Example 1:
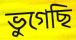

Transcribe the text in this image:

ভুগেছি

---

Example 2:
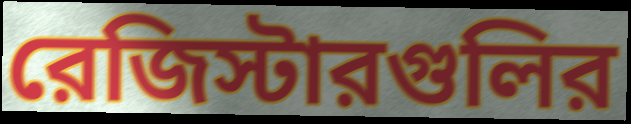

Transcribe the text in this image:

রেজিস্টারগুলির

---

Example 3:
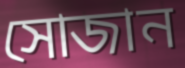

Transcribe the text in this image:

সোজান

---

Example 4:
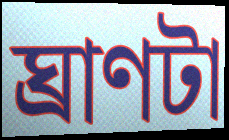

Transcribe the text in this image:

ঘ্রাণটা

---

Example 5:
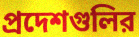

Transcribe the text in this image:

প্রদেশগুলির